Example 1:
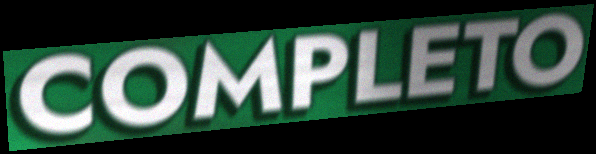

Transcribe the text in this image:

COMPLETO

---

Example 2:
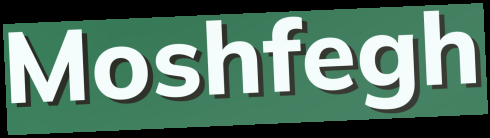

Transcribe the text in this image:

Moshfegh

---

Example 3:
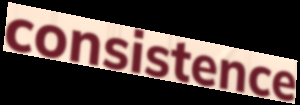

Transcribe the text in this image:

consistence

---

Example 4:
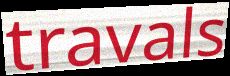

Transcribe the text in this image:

travals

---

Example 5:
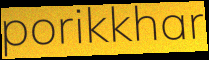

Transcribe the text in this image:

porikkhar